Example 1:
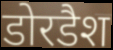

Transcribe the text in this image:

डोरडैश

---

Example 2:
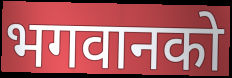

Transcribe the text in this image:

भगवानको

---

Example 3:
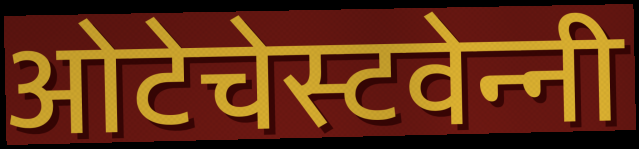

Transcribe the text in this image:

ओटेचेस्टवेन्नी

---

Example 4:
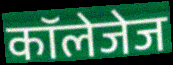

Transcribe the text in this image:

कॉलेजेज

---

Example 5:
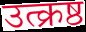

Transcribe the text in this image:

उत्क्रष्ठ